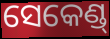
ସେକେଣ୍ଡ୍